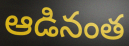
ఆడినంత